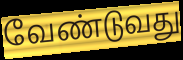
வேண்டுவது